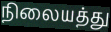
நிலையத்து